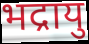
भद्रायु